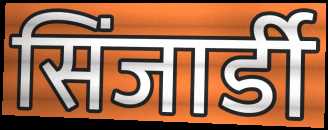
सिंजार्डी